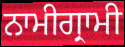
ਨਾਮੀਗ੍ਰਾਮੀ